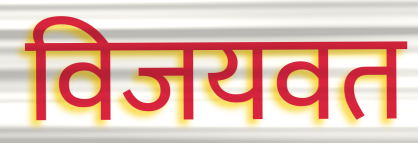
विजयवत